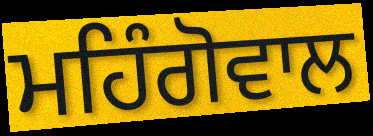
ਮਹਿੰਗੋਵਾਲ